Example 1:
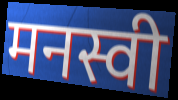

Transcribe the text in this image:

मनस्वी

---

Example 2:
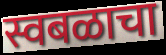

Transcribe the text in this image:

स्वबळाचा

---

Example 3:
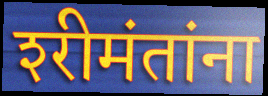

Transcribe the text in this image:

श्रीमंतांना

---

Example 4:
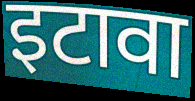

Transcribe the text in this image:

इटावा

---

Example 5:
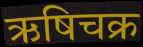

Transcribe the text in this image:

ऋषिचक्र